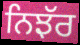
ਨਿਝੱਰ